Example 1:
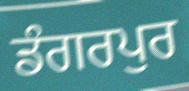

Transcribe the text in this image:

ਡੰਗਰਪੁਰ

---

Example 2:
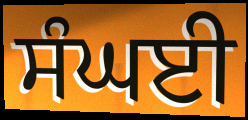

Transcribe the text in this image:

ਸੰਘਈ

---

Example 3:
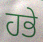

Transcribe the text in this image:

ਹਭੇ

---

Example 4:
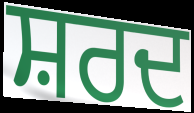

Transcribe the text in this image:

ਸ਼ਰਦ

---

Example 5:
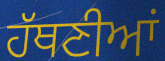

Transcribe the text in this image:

ਹੱਥਣੀਆਂ